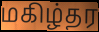
மகிழ்தர